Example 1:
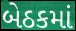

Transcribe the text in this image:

બેઠકમાં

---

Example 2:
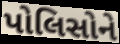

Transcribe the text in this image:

પોલિસોને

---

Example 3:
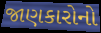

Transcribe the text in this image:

જાણકારોનો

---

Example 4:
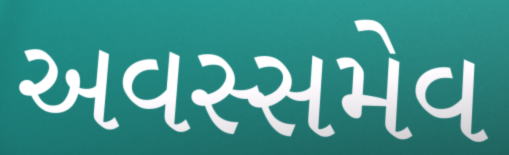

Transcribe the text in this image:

અવસ્સમેવ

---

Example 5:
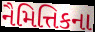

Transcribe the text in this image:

નૈમિત્તિકના